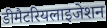
डीमैटरियलाइजेशन